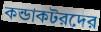
কন্ডাকটরদের